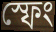
স্ফেং